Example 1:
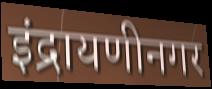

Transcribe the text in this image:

इंद्रायणीनगर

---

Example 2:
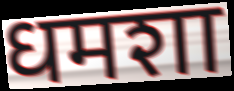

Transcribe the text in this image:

धमशा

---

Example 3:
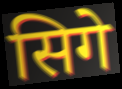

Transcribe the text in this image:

सिगे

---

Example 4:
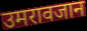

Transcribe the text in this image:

उमरावजान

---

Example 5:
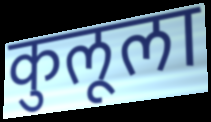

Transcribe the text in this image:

कुलूला